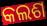
କଲଶ